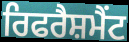
ਰਿਫਰੈਸ਼ਮੈਂਟ